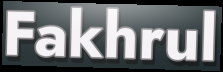
Fakhrul